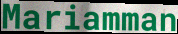
Mariamman